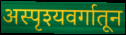
अस्पृश्यवर्गातून